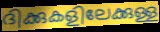
ദിക്കുകളിലേക്കുള്ള